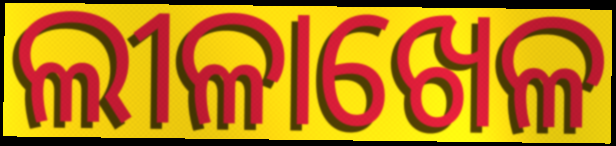
ଲୀଳାଖେଳ